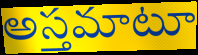
అస్తమాటూ